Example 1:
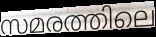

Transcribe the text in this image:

സമരത്തിലെ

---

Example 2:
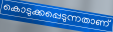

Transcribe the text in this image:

കൊടുക്കപ്പെടുന്നതാണ്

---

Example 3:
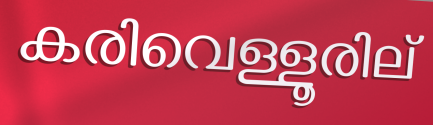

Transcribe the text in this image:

കരിവെള്ളൂരില്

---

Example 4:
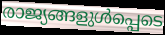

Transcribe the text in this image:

രാജ്യങ്ങളുൾപ്പെടെ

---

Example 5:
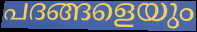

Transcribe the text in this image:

പദങ്ങളെയും